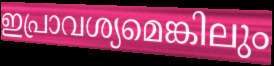
ഇപ്രാവശ്യമെങ്കിലും